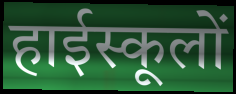
हाईस्कूलों